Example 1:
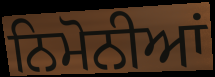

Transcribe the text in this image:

ਨਿਮੋਨੀਆਂ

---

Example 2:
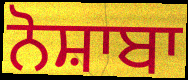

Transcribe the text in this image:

ਨੋਸ਼ਾਬਾ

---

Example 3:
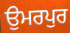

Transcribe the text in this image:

ਉਮਰਪੁਰ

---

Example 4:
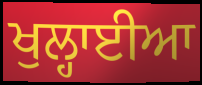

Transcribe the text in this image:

ਖੁਲ੍ਹਾਈਆ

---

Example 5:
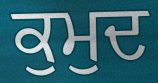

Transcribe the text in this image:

ਕੁਮੁਦ